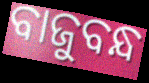
ବାଜୁବନ୍ଧ